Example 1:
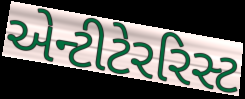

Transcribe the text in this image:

એન્ટીટેરરિસ્ટ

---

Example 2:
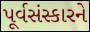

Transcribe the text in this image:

પૂર્વસંસ્કારને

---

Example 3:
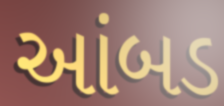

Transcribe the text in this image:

આંબડ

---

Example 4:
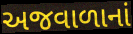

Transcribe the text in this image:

અજવાળાનાં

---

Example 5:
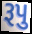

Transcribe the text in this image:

રૂપુ